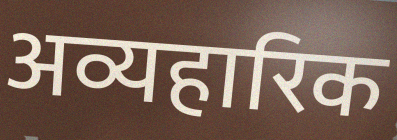
अव्यहारिक